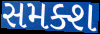
સમક્શ